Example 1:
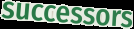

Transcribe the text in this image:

successors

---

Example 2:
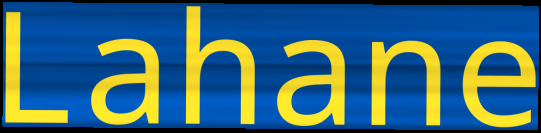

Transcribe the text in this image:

Lahane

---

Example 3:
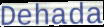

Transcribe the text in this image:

Dehada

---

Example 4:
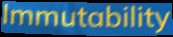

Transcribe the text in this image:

Immutability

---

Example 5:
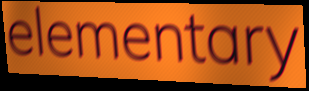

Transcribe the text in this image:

elementary